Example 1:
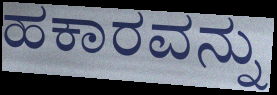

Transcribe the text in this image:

ಹಕಾರವನ್ನು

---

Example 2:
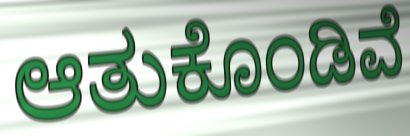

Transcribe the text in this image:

ಆತುಕೊಂಡಿವೆ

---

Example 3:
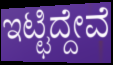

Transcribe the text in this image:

ಇಟ್ಟಿದ್ದೇವೆ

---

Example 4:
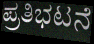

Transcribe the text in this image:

ಪ್ರತಿಭಟನೆ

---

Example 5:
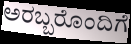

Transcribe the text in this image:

ಅರಬ್ಬರೊಂದಿಗೆ